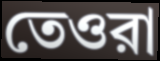
তেওরা